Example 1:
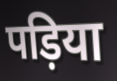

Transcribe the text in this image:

पड़िया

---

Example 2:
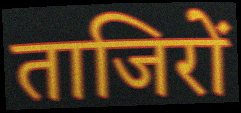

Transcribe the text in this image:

ताजिरों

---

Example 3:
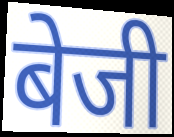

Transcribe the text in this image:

बेजी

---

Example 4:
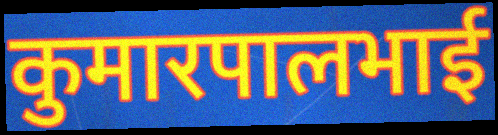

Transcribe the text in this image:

कुमारपालभाई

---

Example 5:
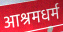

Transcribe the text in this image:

आश्रमधर्म